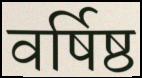
वर्षिष्ठ